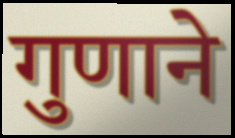
गुणाने